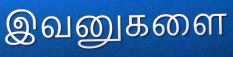
இவனுகளை